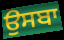
ਉਸਬਾ